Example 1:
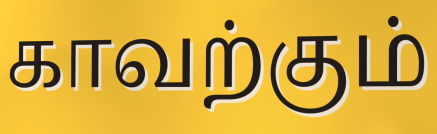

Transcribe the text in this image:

காவற்கும்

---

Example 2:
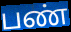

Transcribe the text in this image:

பண்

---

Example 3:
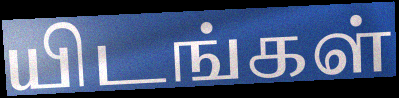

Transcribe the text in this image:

யிடங்கள்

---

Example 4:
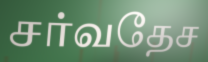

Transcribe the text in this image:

சர்வதேச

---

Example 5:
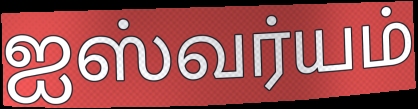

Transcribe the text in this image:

ஐஸ்வர்யம்